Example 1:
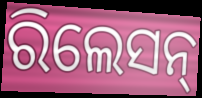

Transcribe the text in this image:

ରିଲେସନ୍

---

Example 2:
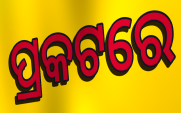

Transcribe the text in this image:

ପ୍ରକଟରେ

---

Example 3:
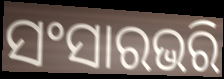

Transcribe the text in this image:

ସଂସାରଭରି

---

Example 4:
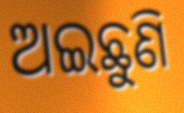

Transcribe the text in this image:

ଅଇଛୁଣି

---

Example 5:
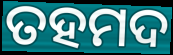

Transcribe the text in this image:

ତହମଦ